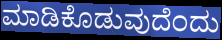
ಮಾಡಿಕೊಡುವುದೆಂದು